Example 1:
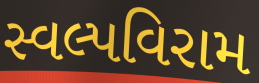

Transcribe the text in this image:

સ્વલ્પવિરામ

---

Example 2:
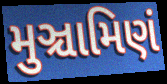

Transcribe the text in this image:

મુઞ્ચામિણં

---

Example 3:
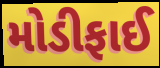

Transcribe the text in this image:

મોડીફાઈ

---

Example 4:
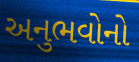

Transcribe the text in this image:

અનુભવોનો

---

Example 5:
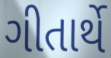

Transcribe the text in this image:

ગીતાર્થે